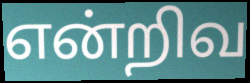
என்றிவ